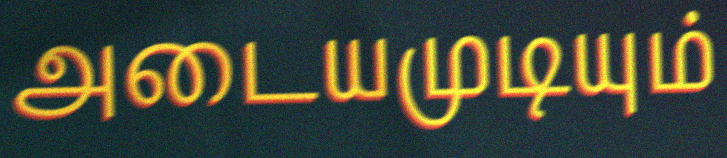
அடையமுடியும்